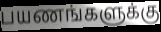
பயணங்களுக்கு